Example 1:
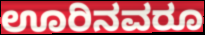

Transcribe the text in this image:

ಊರಿನವರೂ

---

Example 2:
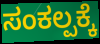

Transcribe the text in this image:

ಸಂಕಲ್ಪಕ್ಕೆ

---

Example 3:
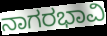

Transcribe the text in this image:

ನಾಗರಭಾವಿ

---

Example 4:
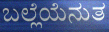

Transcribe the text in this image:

ಬಲ್ಲೆಯೆನುತ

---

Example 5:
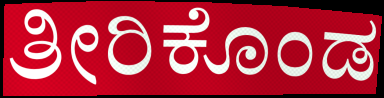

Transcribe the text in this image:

ತೀರಿಕೊಂಡ